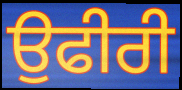
ਉਫੀਰੀ